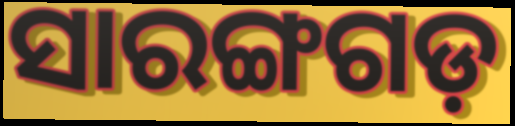
ସାରଙ୍ଗଗଡ଼